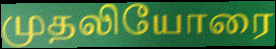
முதலியோரை